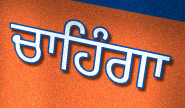
ਚਾਹਿੰਗਾ